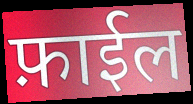
फ़ाईल